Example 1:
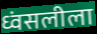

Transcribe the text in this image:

ध्वंसलीला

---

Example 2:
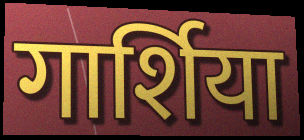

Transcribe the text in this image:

गार्शिया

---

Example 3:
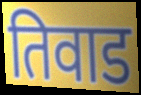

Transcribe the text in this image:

तिवाड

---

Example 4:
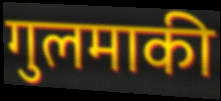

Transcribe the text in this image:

गुलमाकी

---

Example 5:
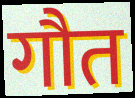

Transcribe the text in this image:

गौत